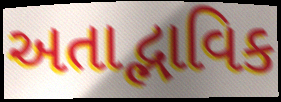
અતાદ્ભાવિક